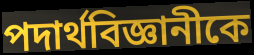
পদার্থবিজ্ঞানীকে